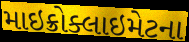
માઇક્રોક્લાઇમેટના